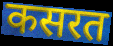
कसरत